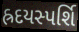
હ્રદયસ્પર્શિ